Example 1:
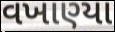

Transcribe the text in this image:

વખાણ્યા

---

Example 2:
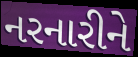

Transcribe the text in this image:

નરનારીને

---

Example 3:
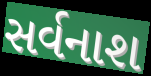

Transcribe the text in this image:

સર્વનાશ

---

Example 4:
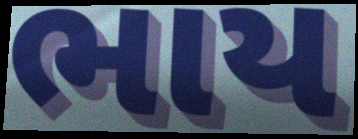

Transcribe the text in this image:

ભાય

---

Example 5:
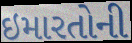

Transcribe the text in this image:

ઇમારતોની